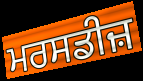
ਮਰਸਡੀਜ਼